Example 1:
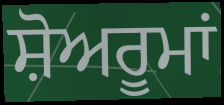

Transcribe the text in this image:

ਸ਼ੋਅਰੂਮਾਂ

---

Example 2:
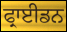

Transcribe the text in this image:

ਫ੍ਰਾਈਡਨ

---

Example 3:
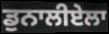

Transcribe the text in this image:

ਡੁਨਾਲੀਏਲਾ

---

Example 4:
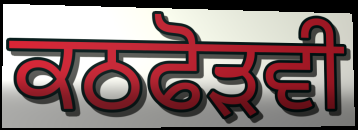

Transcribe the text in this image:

ਕਠਫੋੜਵੀ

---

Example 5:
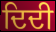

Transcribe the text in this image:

ਦਿਦੀ